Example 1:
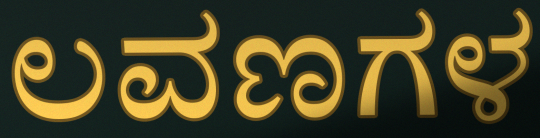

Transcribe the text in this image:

ಲವಣಗಳ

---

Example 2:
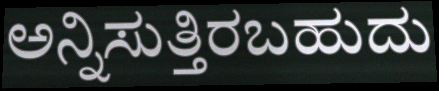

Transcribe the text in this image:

ಅನ್ನಿಸುತ್ತಿರಬಹುದು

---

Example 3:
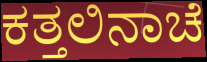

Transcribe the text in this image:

ಕತ್ತಲಿನಾಚೆ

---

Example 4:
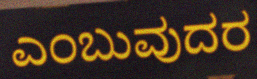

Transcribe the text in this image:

ಎಂಬುವುದರ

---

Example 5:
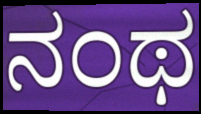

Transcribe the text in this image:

ನಂಥ